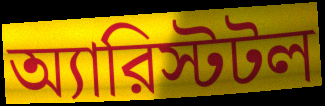
অ্যারিস্টটল